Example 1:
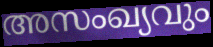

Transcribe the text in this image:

അസംഖ്യവും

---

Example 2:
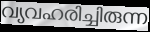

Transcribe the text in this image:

വ്യവഹരിച്ചിരുന്ന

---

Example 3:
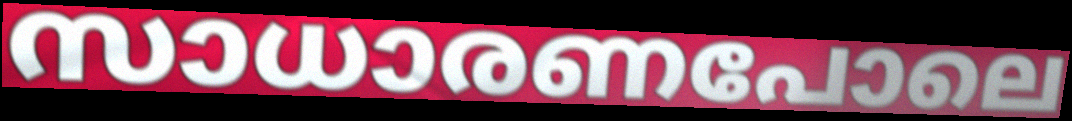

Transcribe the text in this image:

സാധാരണപോലെ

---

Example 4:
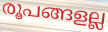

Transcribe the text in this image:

രൂപങ്ങളല്ല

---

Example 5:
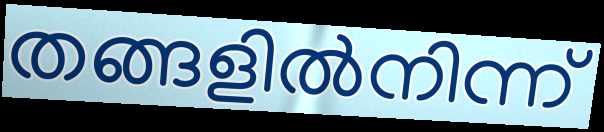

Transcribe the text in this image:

തങ്ങളിൽനിന്ന്